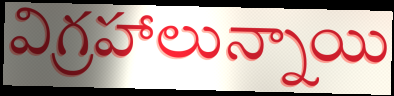
విగ్రహాలున్నాయి